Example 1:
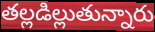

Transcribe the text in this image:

తల్లడిల్లుతున్నారు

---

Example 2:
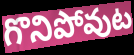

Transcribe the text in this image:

గొనిపోవుట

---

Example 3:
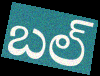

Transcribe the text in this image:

బల్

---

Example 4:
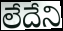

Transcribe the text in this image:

లేదేని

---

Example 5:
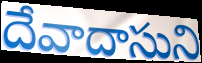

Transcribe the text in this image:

దేవాదాసుని